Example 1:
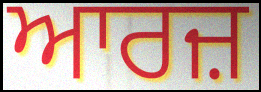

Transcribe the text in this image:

ਆਰਜ਼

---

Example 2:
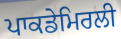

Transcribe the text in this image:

ਪਾਕਡੇਮਿਰਲੀ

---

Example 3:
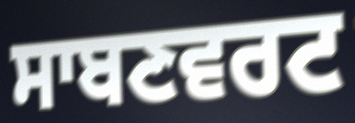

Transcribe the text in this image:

ਸਾਬਣਵਰਟ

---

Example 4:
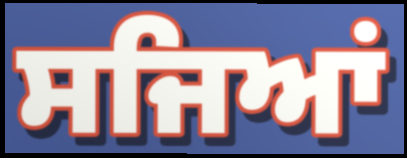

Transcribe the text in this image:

ਸਜਿਆਂ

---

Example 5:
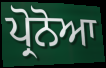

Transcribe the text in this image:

ਪ੍ਰੋਨੋਆ